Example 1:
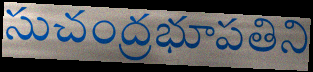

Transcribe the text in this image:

సుచంద్రభూపతిని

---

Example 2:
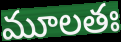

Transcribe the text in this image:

మూలతః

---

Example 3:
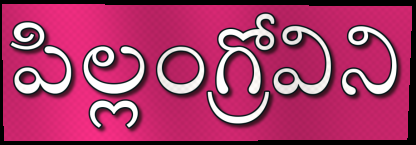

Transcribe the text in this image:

పిల్లంగ్రోవిని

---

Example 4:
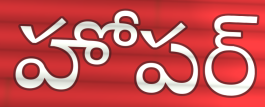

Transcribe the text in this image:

హోపర్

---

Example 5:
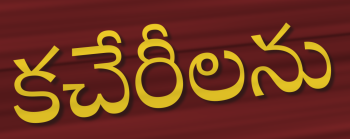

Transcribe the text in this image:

కచేరీలను